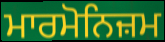
ਮਾਰਮੋਨਿਜ਼ਮ